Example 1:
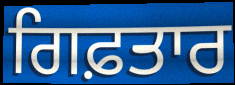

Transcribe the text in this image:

ਗਿਫ਼ਤਾਰ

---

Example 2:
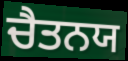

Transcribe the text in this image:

ਚੈਤਨਯ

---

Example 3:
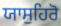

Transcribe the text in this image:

ਯਾਸੁਹਿਰੋ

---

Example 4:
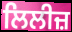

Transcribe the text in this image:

ਲਿਲੀਜ਼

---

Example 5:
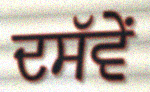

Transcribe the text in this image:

ਦਸੱਵੇਂ